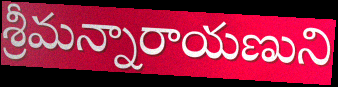
శ్రీమన్నారాయణుని